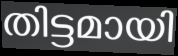
തിട്ടമായി